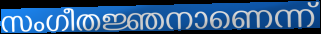
സംഗീതജ്ഞനാണെന്ന്